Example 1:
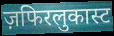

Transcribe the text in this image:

ज़फिरलुकास्ट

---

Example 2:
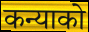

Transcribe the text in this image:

कन्याको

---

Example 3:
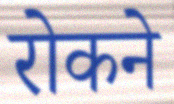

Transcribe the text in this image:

रोकने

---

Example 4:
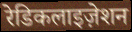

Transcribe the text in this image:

रेडिकलाइज़ेशन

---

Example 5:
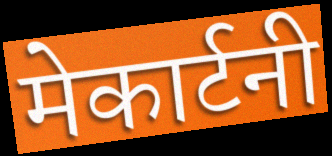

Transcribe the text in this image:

मेकार्टनी